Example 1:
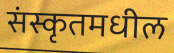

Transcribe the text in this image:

संस्कृतमधील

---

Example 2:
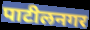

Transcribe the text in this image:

पाटीलनगर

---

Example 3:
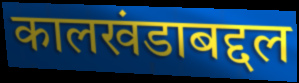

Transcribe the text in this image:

कालखंडाबद्दल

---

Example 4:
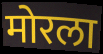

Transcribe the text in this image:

मोरला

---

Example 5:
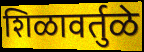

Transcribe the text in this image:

शिळावर्तुळे